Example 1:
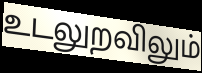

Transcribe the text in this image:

உடலுறவிலும்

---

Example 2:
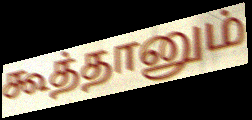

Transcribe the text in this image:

கூத்தானும்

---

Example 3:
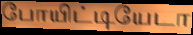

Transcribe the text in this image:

போயிட்டியேடா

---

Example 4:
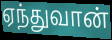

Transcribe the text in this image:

ஏந்துவான்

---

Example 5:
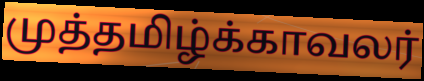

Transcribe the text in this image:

முத்தமிழ்க்காவலர்